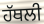
ਹੱਥਲੀ